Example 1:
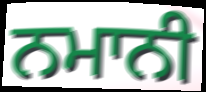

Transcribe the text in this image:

ਨਮਾਨੀ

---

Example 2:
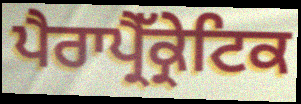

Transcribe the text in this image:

ਪੈਰਾਪ੍ਰੈੱਕ੍ਰੇਟਿਕ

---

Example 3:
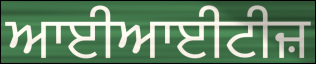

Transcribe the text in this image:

ਆਈਆਈਟੀਜ਼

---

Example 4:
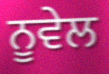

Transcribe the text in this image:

ਨੂਵੇਲ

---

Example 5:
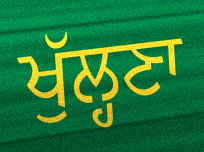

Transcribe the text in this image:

ਖੁੱਲ੍ਹਣਾ